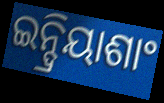
ଇନ୍ଦ୍ରିୟାଶାଂ